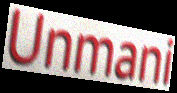
Unmani